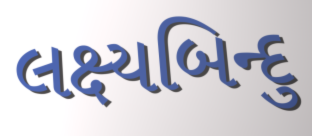
લક્ષ્યબિન્દુ